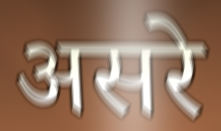
असरे